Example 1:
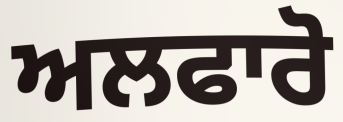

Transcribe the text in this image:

ਅਲਫਾਰੋ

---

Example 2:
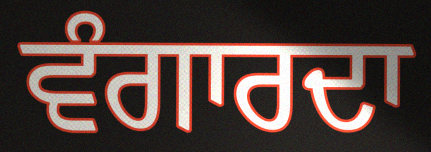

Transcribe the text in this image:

ਵੰਗਾਰਦਾ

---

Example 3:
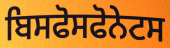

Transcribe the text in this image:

ਬਿਸਫੋਸਫੋਨੇਟਸ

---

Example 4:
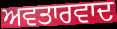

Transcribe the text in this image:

ਅਵਤਾਰਵਾਦ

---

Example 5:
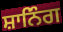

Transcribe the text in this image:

ਸ਼ਾਨਿੰਗ